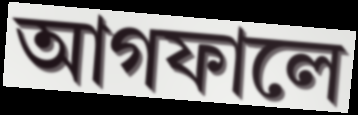
আগফালে